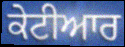
ਕੇਟੀਆਰ